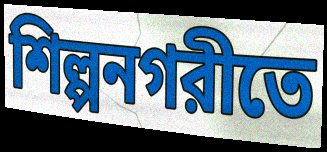
শিল্পনগরীতে